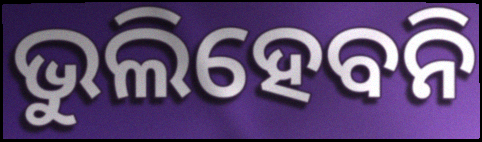
ଭୁଲିହେବନି